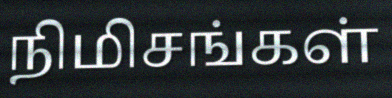
நிமிசங்கள்